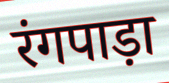
रंगपाड़ा